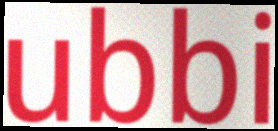
ubbi